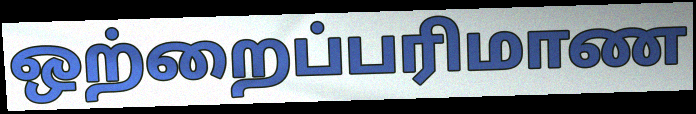
ஒற்றைப்பரிமாண